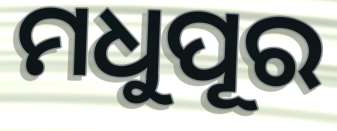
ମଧୁପୂର